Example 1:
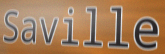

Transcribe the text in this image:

Saville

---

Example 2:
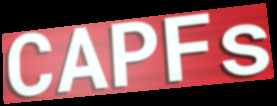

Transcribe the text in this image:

CAPFs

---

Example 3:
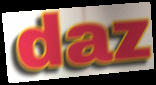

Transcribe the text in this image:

daz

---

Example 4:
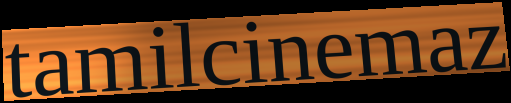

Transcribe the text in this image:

tamilcinemaz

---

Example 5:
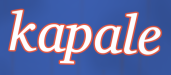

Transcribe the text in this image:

kapale